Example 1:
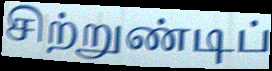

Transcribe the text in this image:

சிற்றுண்டிப்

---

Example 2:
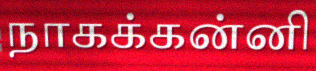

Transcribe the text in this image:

நாகக்கன்னி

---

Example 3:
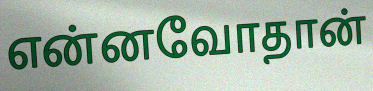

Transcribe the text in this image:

என்னவோதான்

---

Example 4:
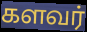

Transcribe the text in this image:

களவர்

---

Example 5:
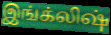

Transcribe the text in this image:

இங்க்லிஷ்